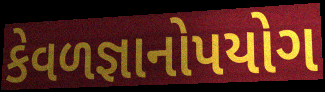
કેવળજ્ઞાનોપયોગ